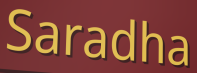
Saradha